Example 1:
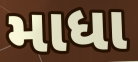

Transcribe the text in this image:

માધા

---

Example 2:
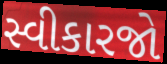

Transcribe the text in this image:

સ્વીકારજો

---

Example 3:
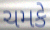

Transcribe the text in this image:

ચમકે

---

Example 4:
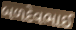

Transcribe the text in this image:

બળદેવભાઈ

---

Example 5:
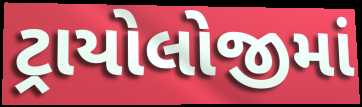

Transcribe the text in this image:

ટ્રાયોલોજીમાં